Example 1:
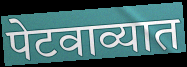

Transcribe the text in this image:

पेटवाव्यात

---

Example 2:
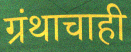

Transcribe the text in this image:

ग्रंथाचाही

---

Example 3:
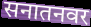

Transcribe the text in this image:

सनातनवर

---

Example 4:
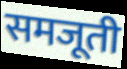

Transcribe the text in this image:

समजूती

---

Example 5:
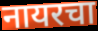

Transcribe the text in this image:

नायरचा